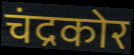
चंद्रकोर